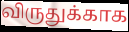
விருதுக்காக